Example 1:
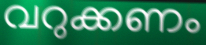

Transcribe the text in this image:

വറുക്കണം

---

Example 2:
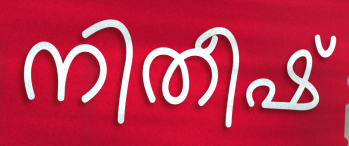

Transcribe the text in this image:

നിതീഷ്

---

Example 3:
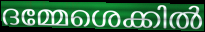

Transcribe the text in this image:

ദമ്മേശെക്കിൽ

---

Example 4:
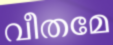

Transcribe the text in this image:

വീതമേ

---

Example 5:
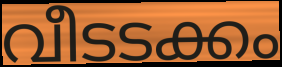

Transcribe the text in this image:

വീടടക്കം